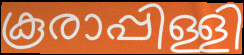
കൂരാപ്പിള്ളി